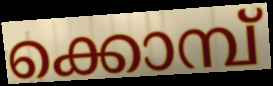
ക്കൊമ്പ്